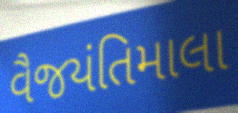
વૈજયંતિમાલા